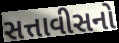
સત્તાવીસનો